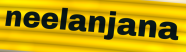
neelanjana